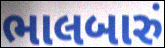
ભાલબારું